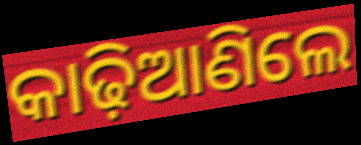
କାଢ଼ିଆଣିଲେ